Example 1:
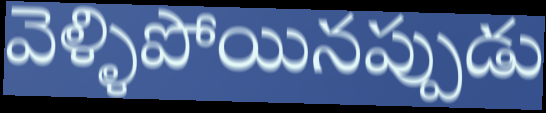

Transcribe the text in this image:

వెళ్ళిపోయినప్పుడు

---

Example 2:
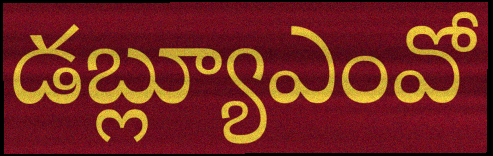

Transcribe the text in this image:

డబ్ల్యూఎంవో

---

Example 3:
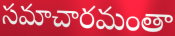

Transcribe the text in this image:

సమాచారమంతా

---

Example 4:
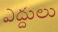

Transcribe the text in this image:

ఎద్దులు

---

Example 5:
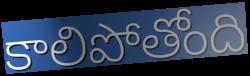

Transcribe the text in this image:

కాలిపోతోంది